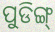
ପୁଡିଙ୍ଗ୍